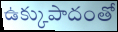
ఉక్కుపాదంతో